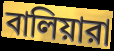
বালিয়ারা